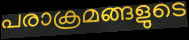
പരാക്രമങ്ങളുടെ